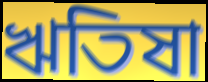
ঋতিষা